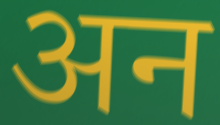
अन